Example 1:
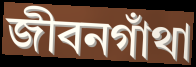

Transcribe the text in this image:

জীবনগাঁথা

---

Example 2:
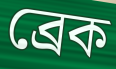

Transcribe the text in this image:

ব্রেক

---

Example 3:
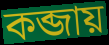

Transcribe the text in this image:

কব্জায়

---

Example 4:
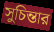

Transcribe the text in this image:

সুচিন্তার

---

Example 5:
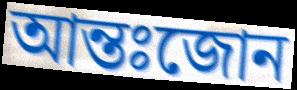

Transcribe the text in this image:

আন্তঃজোন